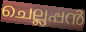
ചെല്ലപ്പൻ